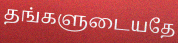
தங்களுடையதே